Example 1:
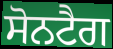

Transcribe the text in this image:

ਸੋਨਟੈਗ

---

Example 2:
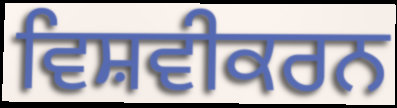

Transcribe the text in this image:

ਵਿਸ਼ਵੀਕਰਨ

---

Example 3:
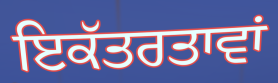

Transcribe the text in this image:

ਇਕੱਤਰਤਾਵਾਂ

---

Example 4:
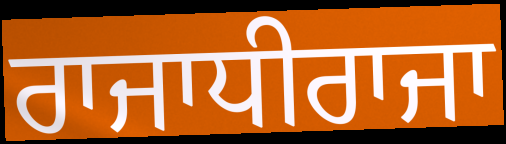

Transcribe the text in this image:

ਰਾਜਾਧੀਰਾਜਾ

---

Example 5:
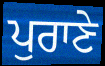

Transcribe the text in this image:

ਪੁਰਾਣੇ